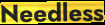
Needless